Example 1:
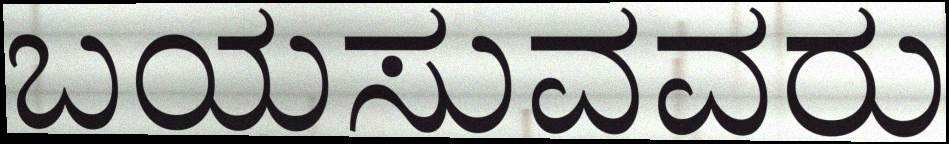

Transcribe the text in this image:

ಬಯಸುವವರು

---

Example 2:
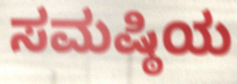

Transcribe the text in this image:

ಸಮಷ್ಠಿಯ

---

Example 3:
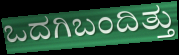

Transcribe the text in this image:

ಒದಗಿಬಂದಿತ್ತು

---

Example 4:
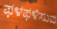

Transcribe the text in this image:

ಫಳಫಳಿಸುವ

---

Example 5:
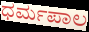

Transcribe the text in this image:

ಧರ್ಮಪಾಲ